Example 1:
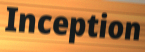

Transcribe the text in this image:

Inception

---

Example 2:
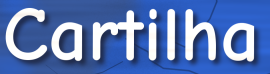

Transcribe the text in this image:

Cartilha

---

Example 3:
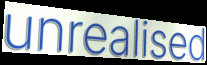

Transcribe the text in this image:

unrealised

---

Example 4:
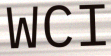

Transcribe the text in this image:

WCI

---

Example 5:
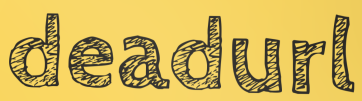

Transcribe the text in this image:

deadurl